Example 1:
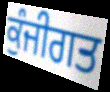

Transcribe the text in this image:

ਕੁੰਜੀਗਤ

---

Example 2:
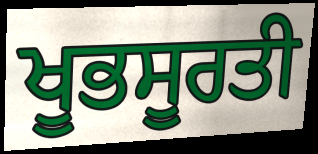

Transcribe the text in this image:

ਖੂਭਸੂਰਤੀ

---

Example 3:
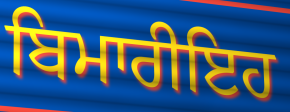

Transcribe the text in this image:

ਬਿਮਾਰੀਇਹ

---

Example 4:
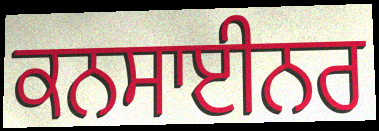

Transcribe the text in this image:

ਕਨਸਾਈਨਰ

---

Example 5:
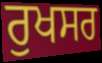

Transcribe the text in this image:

ਰੁਖਸਰ